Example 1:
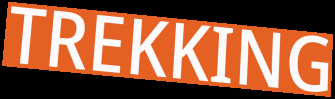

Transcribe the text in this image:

TREKKING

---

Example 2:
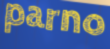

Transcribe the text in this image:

parno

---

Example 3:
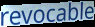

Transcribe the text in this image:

revocable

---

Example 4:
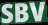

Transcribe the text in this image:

SBV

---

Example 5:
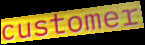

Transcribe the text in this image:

customer